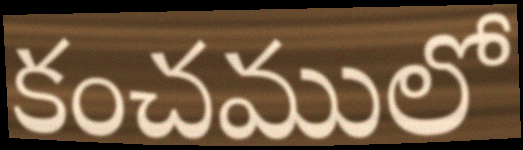
కంచములో